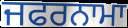
ਜਫਰਨਾਮਾ